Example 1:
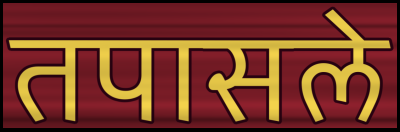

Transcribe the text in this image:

तपासले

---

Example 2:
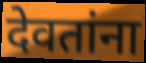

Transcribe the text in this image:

देवतांना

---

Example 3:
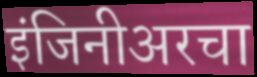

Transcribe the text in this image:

इंजिनीअरचा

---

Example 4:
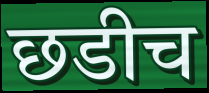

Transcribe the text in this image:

छडीच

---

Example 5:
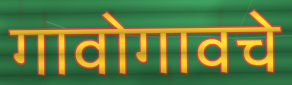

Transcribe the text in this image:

गावोगावचे